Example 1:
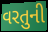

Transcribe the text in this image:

વરતુની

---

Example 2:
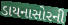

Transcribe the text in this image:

ડાયનાસોરની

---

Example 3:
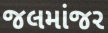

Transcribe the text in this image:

જલમાંજર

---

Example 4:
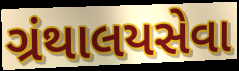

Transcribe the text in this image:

ગ્રંથાલયસેવા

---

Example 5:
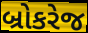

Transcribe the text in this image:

બ્રોકરેજ